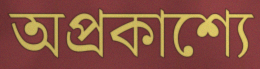
অপ্রকাশ্যে